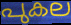
പുകല